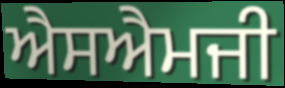
ਐਸਐਮਜੀ